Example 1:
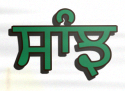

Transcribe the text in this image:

ਸਾੰਝ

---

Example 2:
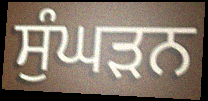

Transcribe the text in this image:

ਸੁੰਘੜਨ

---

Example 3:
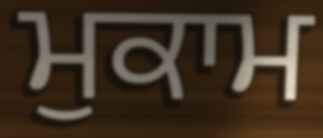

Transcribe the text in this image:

ਮੁਕਾਮ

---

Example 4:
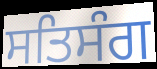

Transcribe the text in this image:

ਸਤਿਸੰਗ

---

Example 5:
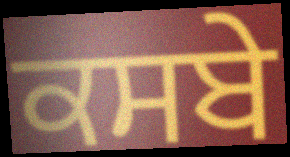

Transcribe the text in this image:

ਕਸਬੇ